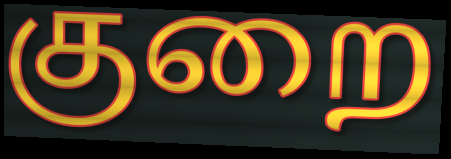
குறை